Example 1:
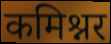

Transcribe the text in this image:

कमिश्नर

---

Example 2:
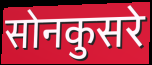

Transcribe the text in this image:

सोनकुसरे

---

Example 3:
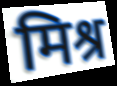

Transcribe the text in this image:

मिश्र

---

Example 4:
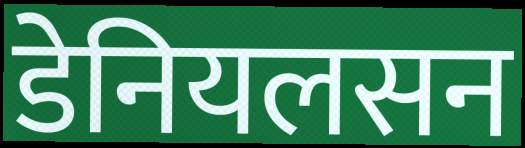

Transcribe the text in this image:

डेनियलसन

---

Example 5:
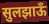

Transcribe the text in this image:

सुलझाऊँ